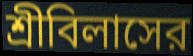
শ্রীবিলাসের